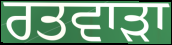
ਰਤਵਾੜਾ